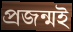
প্ৰজন্মই